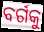
ବର୍ଗକୁ